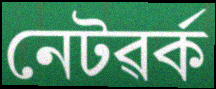
নেটৱৰ্ক